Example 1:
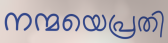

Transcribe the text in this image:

നന്മയെപ്രതി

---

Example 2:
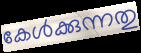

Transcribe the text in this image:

കേൾക്കുന്നതു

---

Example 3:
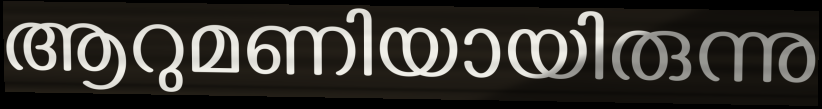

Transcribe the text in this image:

ആറുമണിയായിരുന്നു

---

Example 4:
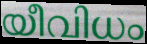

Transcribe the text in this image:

യീവിധം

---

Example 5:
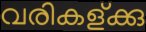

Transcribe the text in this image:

വരികള്ക്കു